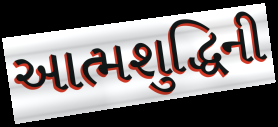
આત્મશુદ્ધિની